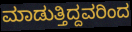
ಮಾಡುತ್ತಿದ್ದವರಿಂದ